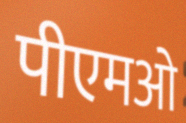
पीएमओ